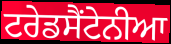
ਟਰੇਡਸੈਂਟੇਨੀਆ